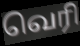
வெரி